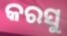
କରସୁ